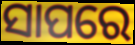
ସାପରେ